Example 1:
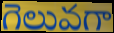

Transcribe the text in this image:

గెలువగా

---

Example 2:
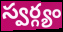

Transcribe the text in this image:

స్వర్గ్యం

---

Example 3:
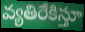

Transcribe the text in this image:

వ్యతిరేకిస్తూ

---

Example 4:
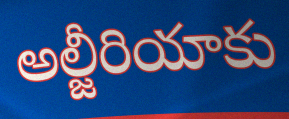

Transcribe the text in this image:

అల్జీరియాకు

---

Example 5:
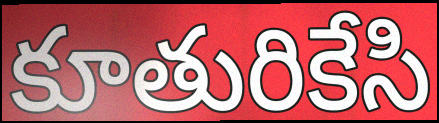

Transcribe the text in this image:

కూతురికేసి